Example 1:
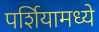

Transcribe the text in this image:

पर्शियामध्ये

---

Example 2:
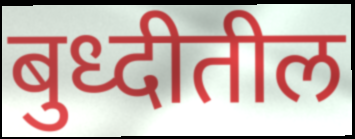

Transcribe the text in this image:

बुध्दीतील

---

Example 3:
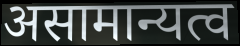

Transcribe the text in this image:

असामान्यत्व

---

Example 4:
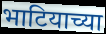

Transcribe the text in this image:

भाटियाच्या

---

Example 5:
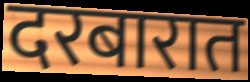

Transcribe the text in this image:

दरबारात